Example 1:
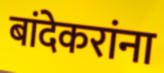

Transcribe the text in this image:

बांदेकरांना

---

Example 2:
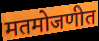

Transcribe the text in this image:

मतमोजणीत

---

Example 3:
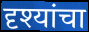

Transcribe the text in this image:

दृश्यांचा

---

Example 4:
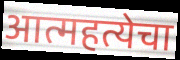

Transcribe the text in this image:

आत्महत्येचा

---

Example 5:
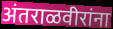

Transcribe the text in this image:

अंतराळवीरांना